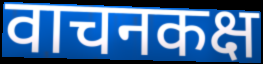
वाचनकक्ष